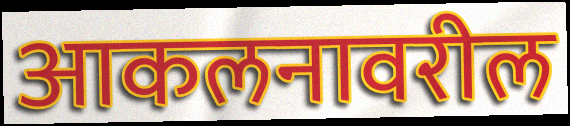
आकलनावरील